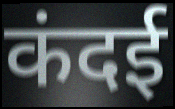
कंदई